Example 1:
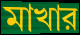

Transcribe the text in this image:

মাখার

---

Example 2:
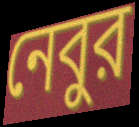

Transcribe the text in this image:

নেবুর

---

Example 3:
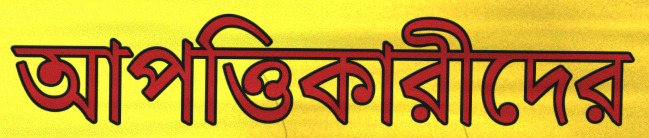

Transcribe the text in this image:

আপত্তিকারীদের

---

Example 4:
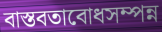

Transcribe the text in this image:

বাস্তবতাবোধসম্পন্ন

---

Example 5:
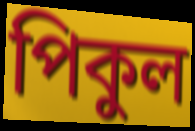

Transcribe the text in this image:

পিকুল